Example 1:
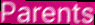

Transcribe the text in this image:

Parents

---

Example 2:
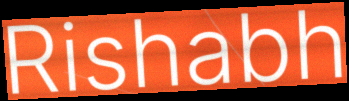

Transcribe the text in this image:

Rishabh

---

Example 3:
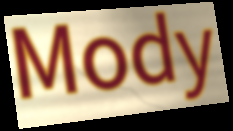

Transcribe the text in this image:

Mody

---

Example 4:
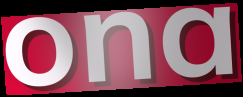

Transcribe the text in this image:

ona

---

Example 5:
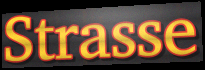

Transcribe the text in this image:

Strasse